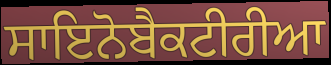
ਸਾਇਨੋਬੈਕਟੀਰੀਆ